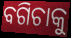
ବଗିଚାକୁ